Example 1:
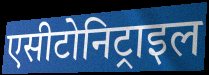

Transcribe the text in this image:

एसीटोनिट्राइल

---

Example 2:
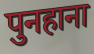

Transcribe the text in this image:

पुनहाना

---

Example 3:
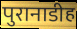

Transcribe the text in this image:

पुरानाडीह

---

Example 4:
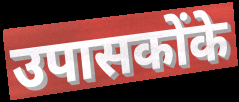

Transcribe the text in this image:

उपासकोंके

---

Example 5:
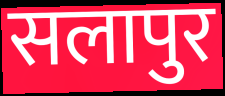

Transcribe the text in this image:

सलापुर